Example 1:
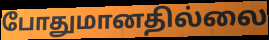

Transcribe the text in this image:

போதுமானதில்லை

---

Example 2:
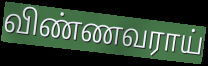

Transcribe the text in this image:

விண்ணவராய்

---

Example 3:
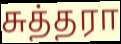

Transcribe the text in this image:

சுத்தரா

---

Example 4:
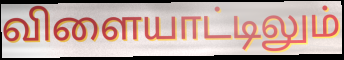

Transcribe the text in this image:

விளையாட்டிலும்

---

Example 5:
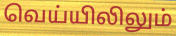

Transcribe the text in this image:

வெய்யிலிலும்